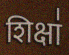
शिक्षा॑